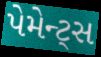
પેમેન્ટ્સ